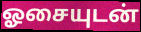
ஓசையுடன்